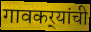
गावकर्यांची